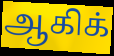
ஆகிக்